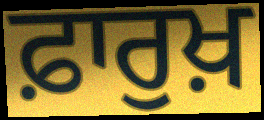
ਫ਼ਾਰੁਖ਼